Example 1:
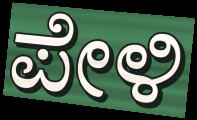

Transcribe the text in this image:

ಪೇಳಿ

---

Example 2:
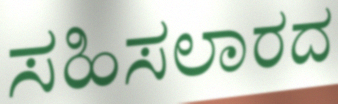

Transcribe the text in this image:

ಸಹಿಸಲಾರದ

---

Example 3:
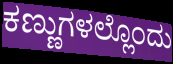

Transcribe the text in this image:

ಕಣ್ಣುಗಳಲ್ಲೊಂದು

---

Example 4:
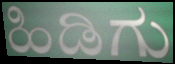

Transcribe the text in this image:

ಹಿಡಿಗು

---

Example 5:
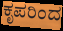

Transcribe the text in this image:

ಕೃಪರಿಂದ